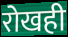
रोखही